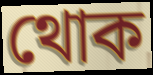
থোক